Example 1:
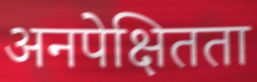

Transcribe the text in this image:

अनपेक्षितता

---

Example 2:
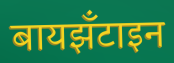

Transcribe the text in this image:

बायझँटाइन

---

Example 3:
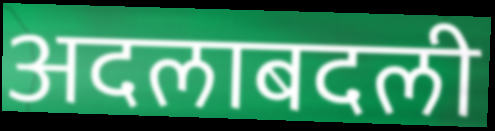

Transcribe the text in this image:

अदलाबदली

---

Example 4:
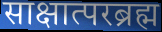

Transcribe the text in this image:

साक्षात्परब्रह्म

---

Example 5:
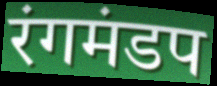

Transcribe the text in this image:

रंगमंडप